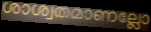
ശാശ്വതമാണല്ലോ